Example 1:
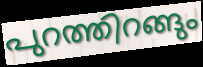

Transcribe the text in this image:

പുറത്തിറങ്ങും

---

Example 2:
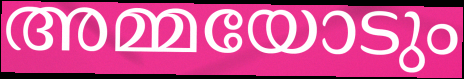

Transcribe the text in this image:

അമ്മയോടും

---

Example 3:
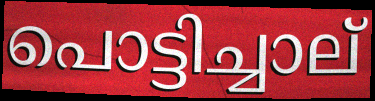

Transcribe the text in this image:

പൊട്ടിച്ചാല്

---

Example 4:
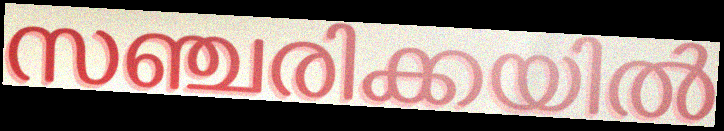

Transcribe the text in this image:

സഞ്ചരിക്കയിൽ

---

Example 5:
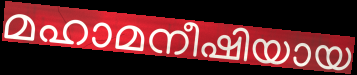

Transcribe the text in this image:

മഹാമനീഷിയായ